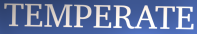
TEMPERATE